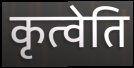
कृत्वेति